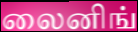
லைனிங்